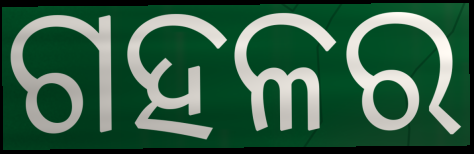
ଗହଳର